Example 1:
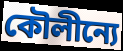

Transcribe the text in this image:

কৌলীন্যে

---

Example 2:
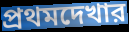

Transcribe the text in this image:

প্রথমদেখার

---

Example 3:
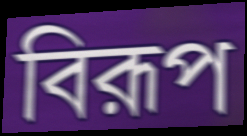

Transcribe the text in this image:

বিরূপ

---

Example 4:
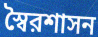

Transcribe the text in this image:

স্বৈরশাসন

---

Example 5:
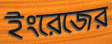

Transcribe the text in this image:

ইংরেজের